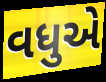
વધુએ